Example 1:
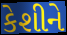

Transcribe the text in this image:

કેશીને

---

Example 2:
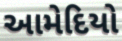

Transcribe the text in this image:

આમેદિયો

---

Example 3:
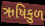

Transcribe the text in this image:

ઋષિકુળ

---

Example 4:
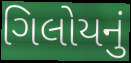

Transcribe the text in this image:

ગિલોયનું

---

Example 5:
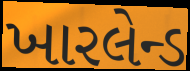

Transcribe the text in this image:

ખારલેન્ડ